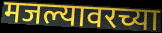
मजल्यावरच्या